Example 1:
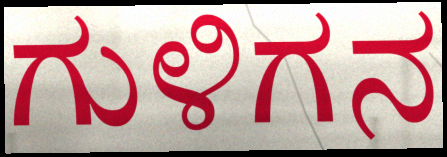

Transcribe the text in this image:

ಗುಳಿಗನ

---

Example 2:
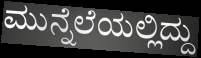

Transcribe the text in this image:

ಮುನ್ನೆಲೆಯಲ್ಲಿದ್ದು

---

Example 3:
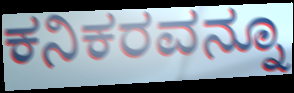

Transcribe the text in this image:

ಕನಿಕರವನ್ನೂ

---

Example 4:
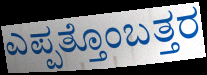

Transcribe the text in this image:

ಎಪ್ಪತ್ತೊಂಬತ್ತರ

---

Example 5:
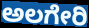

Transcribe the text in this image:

ಅಲಗೇರಿ